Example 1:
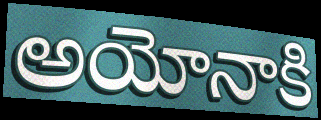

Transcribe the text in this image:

అయోనాకి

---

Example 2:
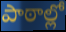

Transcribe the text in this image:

పాఠాల్లో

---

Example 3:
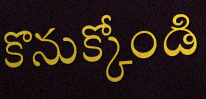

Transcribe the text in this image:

కొనుక్కోండి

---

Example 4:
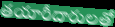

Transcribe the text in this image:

తయారీదారులతో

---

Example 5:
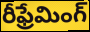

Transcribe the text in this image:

రీఫ్రేమింగ్